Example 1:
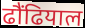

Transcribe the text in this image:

ढौंढियाल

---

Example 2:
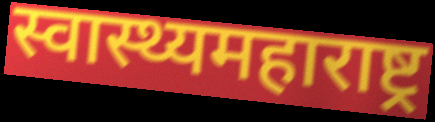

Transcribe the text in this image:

स्वास्थ्यमहाराष्ट्र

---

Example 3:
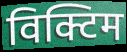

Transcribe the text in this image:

विक्टिम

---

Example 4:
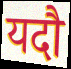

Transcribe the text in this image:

यदौ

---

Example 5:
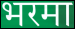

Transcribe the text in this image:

भरमा